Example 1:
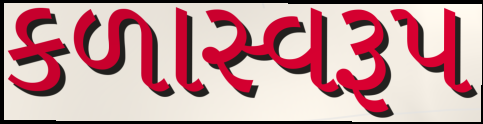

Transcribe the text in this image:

કળાસ્વરૂપ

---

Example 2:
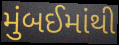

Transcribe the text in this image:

મુંબઈમાંથી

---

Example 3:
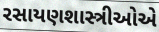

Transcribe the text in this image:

રસાયણશાસ્ત્રીઓએ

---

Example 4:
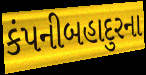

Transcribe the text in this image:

કંપનીબહાદુરના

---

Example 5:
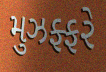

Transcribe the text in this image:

મુઝફ્ફરે